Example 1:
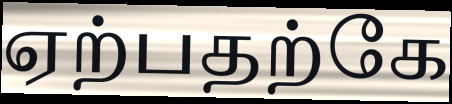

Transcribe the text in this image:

ஏற்பதற்கே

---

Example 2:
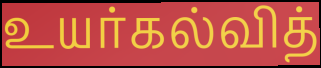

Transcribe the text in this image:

உயர்கல்வித்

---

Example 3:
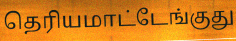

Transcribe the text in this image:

தெரியமாட்டேங்குது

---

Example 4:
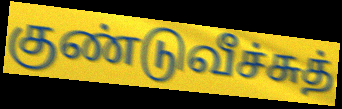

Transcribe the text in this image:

குண்டுவீச்சுத்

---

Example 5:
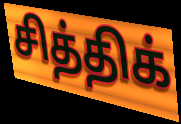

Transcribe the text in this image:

சித்திக்